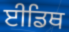
ਈਡਿਥ